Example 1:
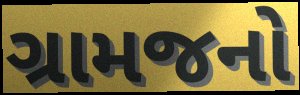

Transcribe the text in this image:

ગ્રામજનો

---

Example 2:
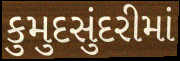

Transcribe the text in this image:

કુમુદસુંદરીમાં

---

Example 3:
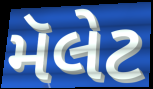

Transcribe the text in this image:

મૅલેટ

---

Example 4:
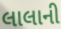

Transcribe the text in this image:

લાલાની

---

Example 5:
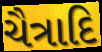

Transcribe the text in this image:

ચૈત્રાદિ